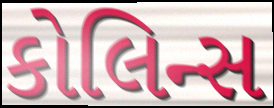
કોલિન્સ